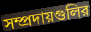
সম্প্রদায়গুলির